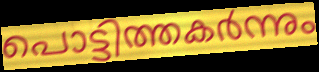
പൊട്ടിത്തകർന്നും